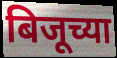
बिजूच्या